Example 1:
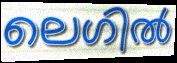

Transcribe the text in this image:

ലെഗിൽ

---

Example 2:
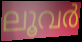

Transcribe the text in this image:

ലൂവർ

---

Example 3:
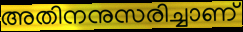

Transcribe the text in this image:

അതിനനുസരിച്ചാണ്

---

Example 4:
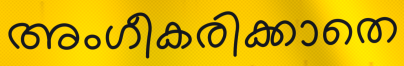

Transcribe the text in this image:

അംഗീകരിക്കാതെ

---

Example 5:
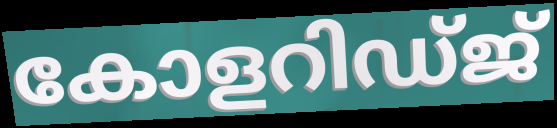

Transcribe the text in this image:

കോളറിഡ്ജ്